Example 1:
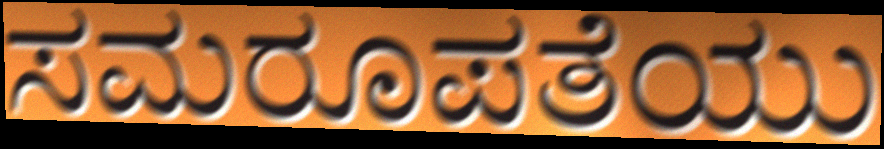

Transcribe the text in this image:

ಸಮರೂಪತೆಯು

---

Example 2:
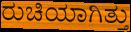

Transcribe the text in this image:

ರುಚಿಯಾಗಿತ್ತು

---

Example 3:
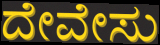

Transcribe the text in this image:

ದೇವೇಸು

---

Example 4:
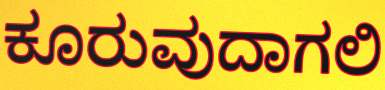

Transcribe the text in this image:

ಕೂರುವುದಾಗಲಿ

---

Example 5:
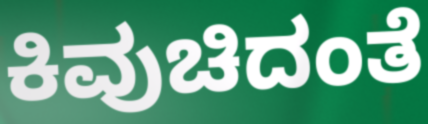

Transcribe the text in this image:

ಕಿವುಚಿದಂತೆ